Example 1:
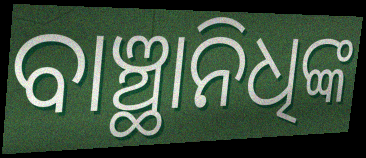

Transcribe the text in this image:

ବାଞ୍ଛାନିଧିଙ୍କ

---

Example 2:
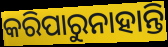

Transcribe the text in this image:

କରିପାରୁନାହାନ୍ତି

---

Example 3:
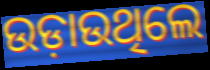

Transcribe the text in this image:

ଉଡ଼ାଉଥିଲେ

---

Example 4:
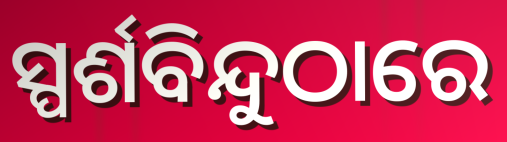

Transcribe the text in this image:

ସ୍ପର୍ଶବିନ୍ଦୁଠାରେ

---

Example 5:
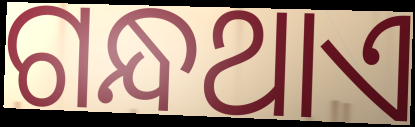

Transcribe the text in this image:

ଗନ୍ଧଥାଏ